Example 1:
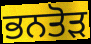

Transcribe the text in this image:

ਭਨਤੋੜ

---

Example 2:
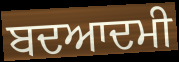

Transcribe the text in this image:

ਬਦਆਦਮੀ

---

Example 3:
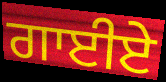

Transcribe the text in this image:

ਗਾਈਏ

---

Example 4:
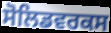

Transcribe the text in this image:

ਸੋਲਿਡਵਰਕਸ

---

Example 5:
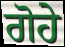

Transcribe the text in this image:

ਗੋਹੇ